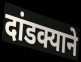
दांडक्याने